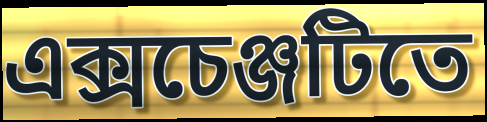
এক্সচেঞ্জটিতে